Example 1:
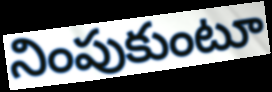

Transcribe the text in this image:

నింపుకుంటూ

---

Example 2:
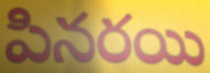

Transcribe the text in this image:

పినరయి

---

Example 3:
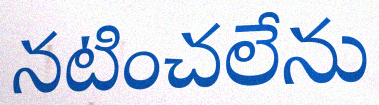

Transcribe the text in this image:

నటించలేను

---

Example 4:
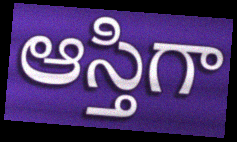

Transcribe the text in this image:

ఆస్తిగా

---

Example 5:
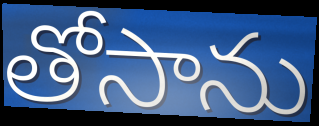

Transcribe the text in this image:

తోసాను